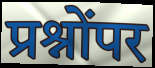
प्रश्नोंपर